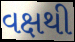
વક્ષથી